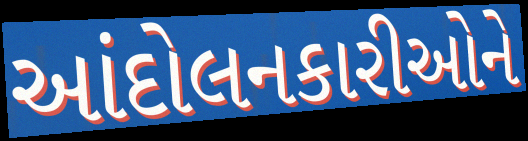
આંદોલનકારીઓને